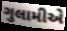
ગુલામીએ